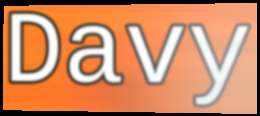
Davy